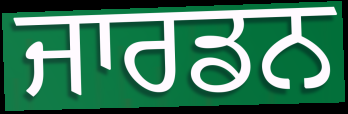
ਜਾਰਡਨ